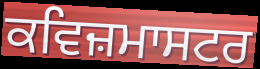
ਕਵਿਜ਼ਮਾਸਟਰ